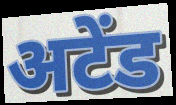
अटेंड